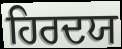
ਹਿਰਦਯ